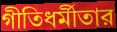
গীতিধর্মীতার